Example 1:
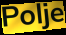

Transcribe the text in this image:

Polje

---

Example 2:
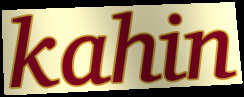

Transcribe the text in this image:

kahin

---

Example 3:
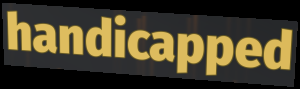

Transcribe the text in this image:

handicapped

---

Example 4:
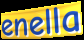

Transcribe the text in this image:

enella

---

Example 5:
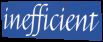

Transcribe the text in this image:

inefficient